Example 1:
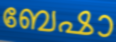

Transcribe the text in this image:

ബേഷാ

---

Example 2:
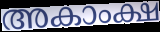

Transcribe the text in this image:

അകാംക്ഷ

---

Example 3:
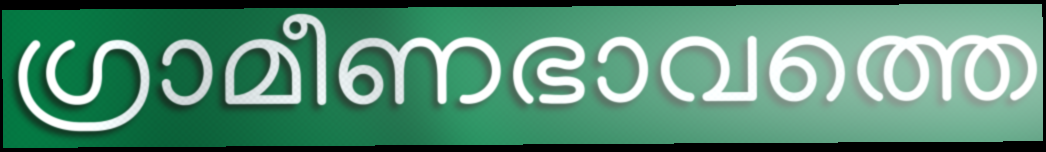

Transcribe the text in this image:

ഗ്രാമീണഭാവത്തെ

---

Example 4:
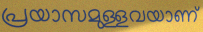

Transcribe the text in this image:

പ്രയാസമുള്ളവയാണ്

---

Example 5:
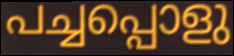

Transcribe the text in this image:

പച്ചപ്പൊളു